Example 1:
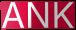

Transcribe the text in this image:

ANK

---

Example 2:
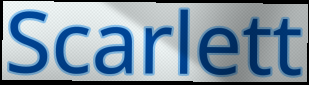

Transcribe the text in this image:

Scarlett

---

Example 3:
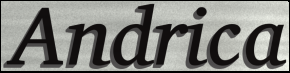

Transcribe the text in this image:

Andrica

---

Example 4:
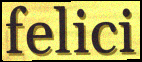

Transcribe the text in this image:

felici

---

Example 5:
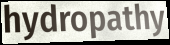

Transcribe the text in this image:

hydropathy